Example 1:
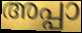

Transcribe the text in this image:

അപ്പാ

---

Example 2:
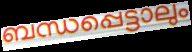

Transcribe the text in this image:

ബന്ധപ്പെട്ടാലും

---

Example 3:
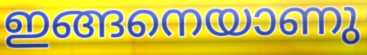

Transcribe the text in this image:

ഇങ്ങനെയാണു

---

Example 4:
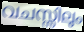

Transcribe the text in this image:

വചസ്സിലും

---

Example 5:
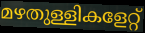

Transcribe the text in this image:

മഴതുള്ളികളേറ്റ്